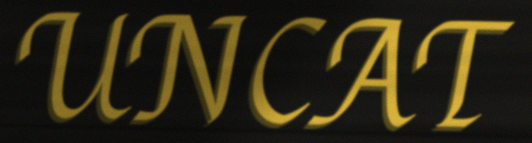
UNCAT